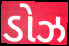
ડોઝ